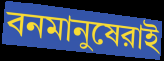
বনমানুষেরাই